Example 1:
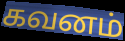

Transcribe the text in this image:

கவனம்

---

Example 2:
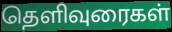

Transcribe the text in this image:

தெளிவுரைகள்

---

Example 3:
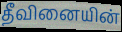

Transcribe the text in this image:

தீவினையின்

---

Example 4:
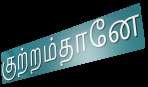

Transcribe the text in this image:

குற்றம்தானே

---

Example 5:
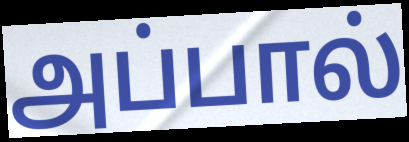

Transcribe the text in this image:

அப்பால்